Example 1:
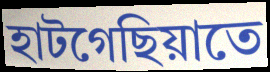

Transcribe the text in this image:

হাটগেছিয়াতে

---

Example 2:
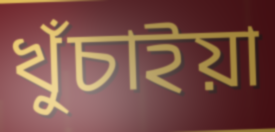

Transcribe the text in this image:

খুঁচাইয়া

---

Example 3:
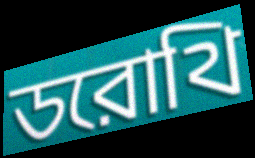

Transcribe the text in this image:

ডরোথি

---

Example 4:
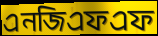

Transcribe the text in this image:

এনজিএফএফ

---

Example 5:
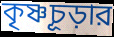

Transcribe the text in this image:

কৃষ্ণচূড়ার